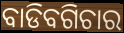
ବାଡିବଗିଚାର